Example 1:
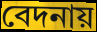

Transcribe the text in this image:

বেদনায়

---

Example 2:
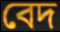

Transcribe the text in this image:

বেদ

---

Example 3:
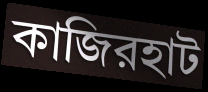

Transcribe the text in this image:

কাজিরহাট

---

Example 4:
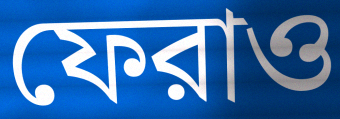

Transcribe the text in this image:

ফেরাও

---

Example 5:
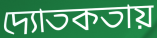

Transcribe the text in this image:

দ্যোতকতায়